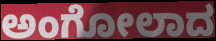
ಅಂಗೋಲಾದ